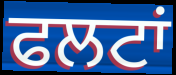
ਫਲਟਾਂ